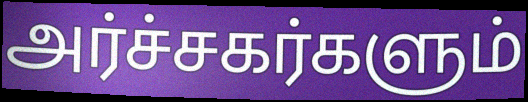
அர்ச்சகர்களும்